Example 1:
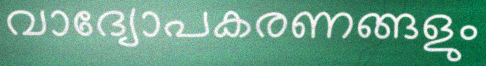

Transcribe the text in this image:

വാദ്യോപകരണങ്ങളും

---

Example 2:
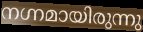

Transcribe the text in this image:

നഗ്നമായിരുന്നു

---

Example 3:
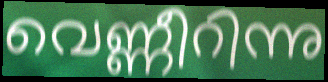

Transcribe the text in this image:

വെണ്ണീറിന്നു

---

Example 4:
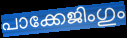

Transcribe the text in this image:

പാക്കേജിംഗും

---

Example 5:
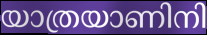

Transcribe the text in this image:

യാത്രയാണിനി